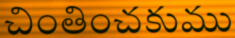
చింతించకుము